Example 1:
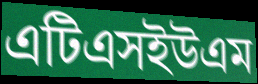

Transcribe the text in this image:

এটিএসইউএম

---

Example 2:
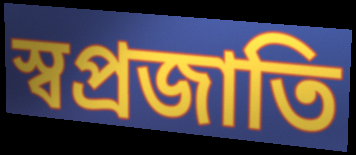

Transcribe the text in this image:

স্বপ্রজাতি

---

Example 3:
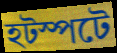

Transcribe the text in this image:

হটস্পটে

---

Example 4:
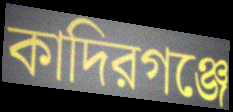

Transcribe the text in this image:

কাদিরগঞ্জে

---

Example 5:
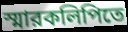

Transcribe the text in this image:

স্মারকলিপিতে